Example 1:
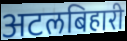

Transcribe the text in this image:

अटलबिहारी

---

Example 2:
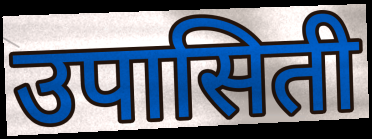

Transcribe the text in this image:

उपासिती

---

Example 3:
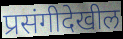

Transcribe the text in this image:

प्रसंगीदेखील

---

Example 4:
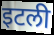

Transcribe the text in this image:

इटली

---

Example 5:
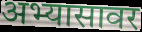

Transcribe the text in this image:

अभ्यासावर